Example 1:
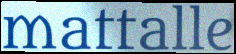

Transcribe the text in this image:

mattalle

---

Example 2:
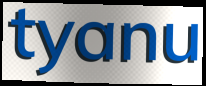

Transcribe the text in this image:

tyanu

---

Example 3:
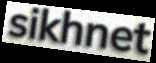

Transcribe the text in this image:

sikhnet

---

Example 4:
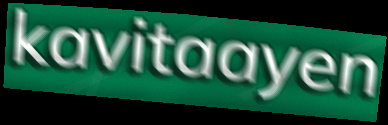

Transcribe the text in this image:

kavitaayen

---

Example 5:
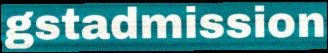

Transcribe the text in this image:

gstadmission